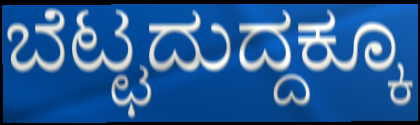
ಬೆಟ್ಟದುದ್ದಕ್ಕೂ